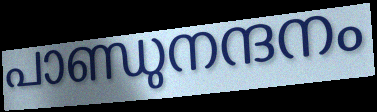
പാണ്ഡുനന്ദനം